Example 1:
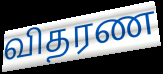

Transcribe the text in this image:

விதரண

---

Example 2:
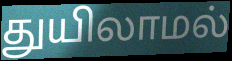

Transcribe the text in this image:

துயிலாமல்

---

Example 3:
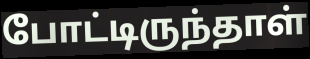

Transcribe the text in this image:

போட்டிருந்தாள்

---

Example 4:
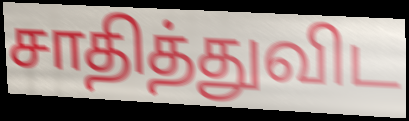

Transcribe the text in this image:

சாதித்துவிட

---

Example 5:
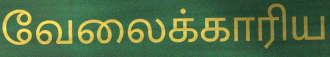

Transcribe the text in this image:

வேலைக்காரிய